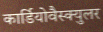
कार्डियोवैस्क्युलर